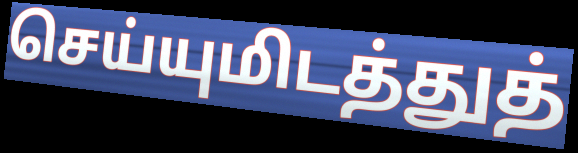
செய்யுமிடத்துத்